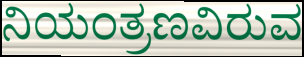
ನಿಯಂತ್ರಣವಿರುವ